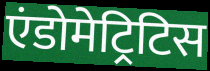
एंडोमेट्रिटिस